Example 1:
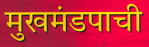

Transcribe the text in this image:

मुखमंडपाची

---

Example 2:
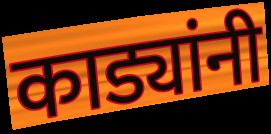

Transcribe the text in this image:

काड्यांनी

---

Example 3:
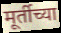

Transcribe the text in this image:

मूर्तीच्या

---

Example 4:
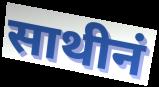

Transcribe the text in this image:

साथीनं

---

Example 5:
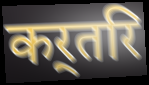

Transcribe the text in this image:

कर्तरि